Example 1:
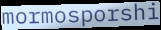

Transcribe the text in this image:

mormosporshi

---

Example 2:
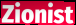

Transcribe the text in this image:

Zionist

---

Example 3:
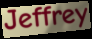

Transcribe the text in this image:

Jeffrey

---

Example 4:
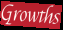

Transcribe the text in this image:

Growths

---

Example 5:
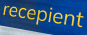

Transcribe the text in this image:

recepient